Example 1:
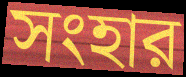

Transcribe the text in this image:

সংহার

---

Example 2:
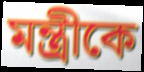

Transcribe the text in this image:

মন্ত্রীকে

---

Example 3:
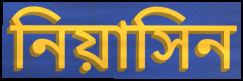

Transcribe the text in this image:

নিয়াসিন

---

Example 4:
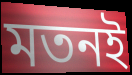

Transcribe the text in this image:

মতনই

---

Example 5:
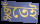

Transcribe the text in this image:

ছুঁতেই